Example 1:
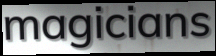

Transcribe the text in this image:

magicians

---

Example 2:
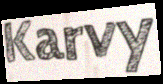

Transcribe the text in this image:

Karvy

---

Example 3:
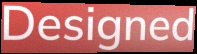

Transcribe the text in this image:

Designed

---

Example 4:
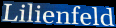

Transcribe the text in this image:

Lilienfeld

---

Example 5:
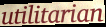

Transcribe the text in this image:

utilitarian